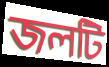
জলটি